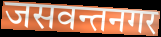
जसवन्तनगर